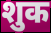
शुक